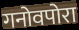
गनोवपोरा